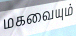
மகவையும்